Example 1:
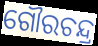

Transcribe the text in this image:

ଗୌରଚନ୍ଦ୍ର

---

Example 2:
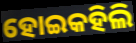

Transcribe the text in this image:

ହୋଇକହିଲି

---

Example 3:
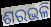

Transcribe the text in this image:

ଶରଭଳି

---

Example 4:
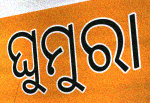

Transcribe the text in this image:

ଘୁମୁରା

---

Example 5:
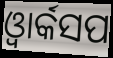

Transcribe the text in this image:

ଓ୍ୱାର୍କସପ